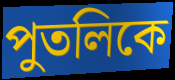
পুতলিকে